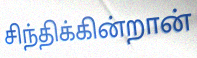
சிந்திக்கின்றான்